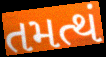
તમત્થં